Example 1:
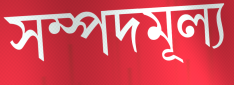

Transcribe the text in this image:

সম্পদমূল্য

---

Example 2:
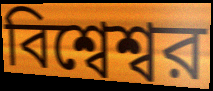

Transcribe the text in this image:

বিশ্বেশ্বর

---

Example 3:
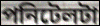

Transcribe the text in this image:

পনিটেলটা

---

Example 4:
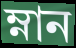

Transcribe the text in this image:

ম্নান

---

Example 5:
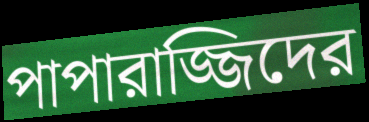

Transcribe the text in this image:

পাপারাজ্জিদের